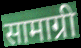
सामाग्री